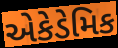
એકેડેમિક